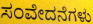
ಸಂವೇದನೆಗಳು